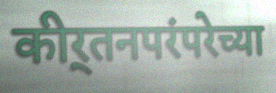
कीर्तनपरंपरेच्या